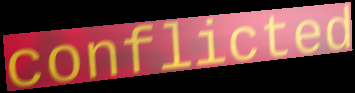
conflicted